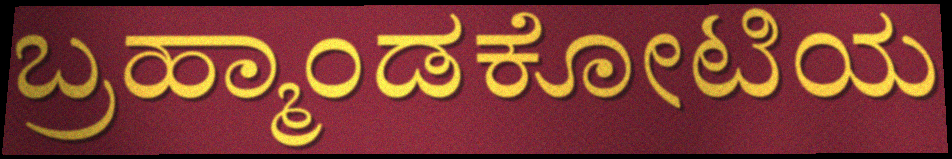
ಬ್ರಹ್ಮಾಂಡಕೋಟಿಯ